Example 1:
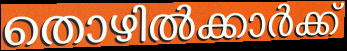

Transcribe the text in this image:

തൊഴിൽക്കാർക്ക്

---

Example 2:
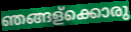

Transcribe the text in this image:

ഞങ്ങള്ക്കൊരു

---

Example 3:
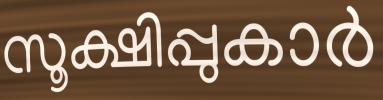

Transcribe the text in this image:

സൂക്ഷിപ്പുകാർ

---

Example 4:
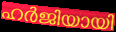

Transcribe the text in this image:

ഹർജിയായി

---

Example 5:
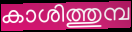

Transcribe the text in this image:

കാശിത്തുമ്പ